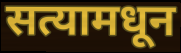
सत्यामधून